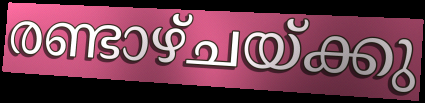
രണ്ടാഴ്ചയ്ക്കു